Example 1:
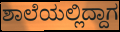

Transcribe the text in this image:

ಶಾಲೆಯಲ್ಲಿದ್ದಾಗ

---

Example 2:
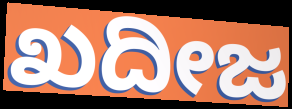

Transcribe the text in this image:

ಖದೀಜ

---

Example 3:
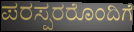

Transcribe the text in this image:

ಪರಸ್ಪರರೊಂದಿಗೆ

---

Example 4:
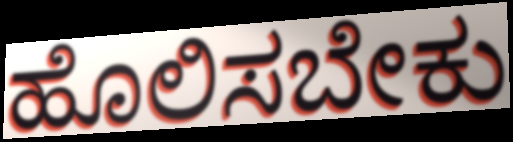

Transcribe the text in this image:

ಹೊಲಿಸಬೇಕು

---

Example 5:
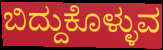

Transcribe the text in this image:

ಬಿದ್ದುಕೊಳ್ಳುವ